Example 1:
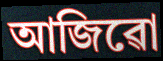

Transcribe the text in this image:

আজিৱো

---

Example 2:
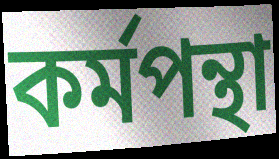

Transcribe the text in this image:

কৰ্মপন্থা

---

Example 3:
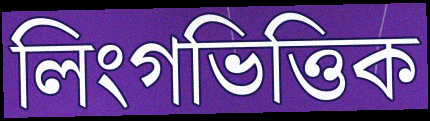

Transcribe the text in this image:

লিংগভিত্তিক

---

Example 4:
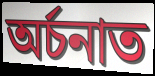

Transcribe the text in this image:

অৰ্চনাত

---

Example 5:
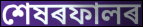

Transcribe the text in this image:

শেষৰফালৰ